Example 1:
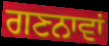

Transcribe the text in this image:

ਗਣਨਾਵਾਂ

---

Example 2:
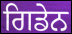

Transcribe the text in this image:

ਗਿਡੇਨ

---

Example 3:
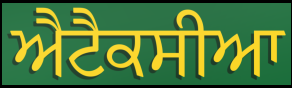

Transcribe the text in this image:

ਐਟੈਕਸੀਆ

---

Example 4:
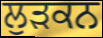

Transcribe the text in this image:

ਲੁੜਕਨ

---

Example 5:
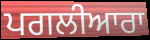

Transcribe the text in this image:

ਪਗਲੀਆਰਾ